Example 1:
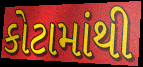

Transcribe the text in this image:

કોટામાંથી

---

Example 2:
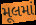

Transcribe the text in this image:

મૂલમાં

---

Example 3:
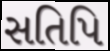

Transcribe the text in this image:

સતિપિ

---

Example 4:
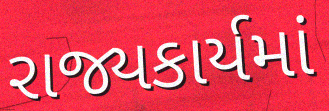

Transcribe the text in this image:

રાજ્યકાર્યમાં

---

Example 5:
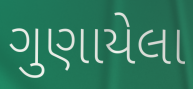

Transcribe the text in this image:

ગુણાયેલા